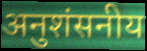
अनुशंसनीय